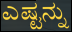
ಎಷ್ಟನ್ನು